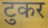
टुकर